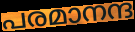
പരമാനന്ദ